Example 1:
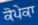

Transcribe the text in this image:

ਕੋਪੇਕਾ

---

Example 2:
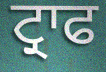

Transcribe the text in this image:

ਟ੍ਰਾਫ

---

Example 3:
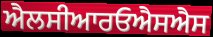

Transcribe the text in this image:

ਐਲਸੀਆਰਓਐਸਐਸ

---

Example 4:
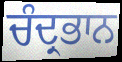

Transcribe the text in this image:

ਚੰਦ੍ਰਭਾਨ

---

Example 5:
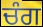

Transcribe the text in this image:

ਚੰਗ